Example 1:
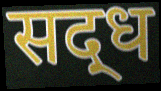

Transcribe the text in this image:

सद्ध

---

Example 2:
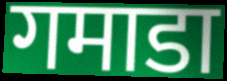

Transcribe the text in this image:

गमाडा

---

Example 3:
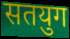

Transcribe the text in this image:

सतयुग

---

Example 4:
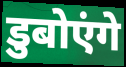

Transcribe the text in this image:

डुबोएंगे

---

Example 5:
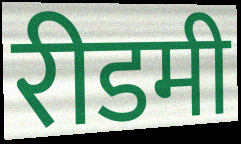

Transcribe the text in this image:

रीडमी